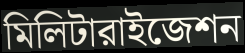
মিলিটারাইজেশন